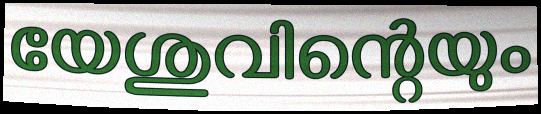
യേശുവിന്റെയും